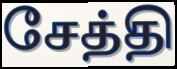
சேத்தி